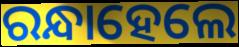
ରନ୍ଧାହେଲେ